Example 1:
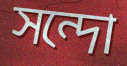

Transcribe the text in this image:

সন্দো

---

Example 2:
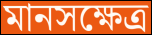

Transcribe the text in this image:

মানসক্ষেত্র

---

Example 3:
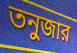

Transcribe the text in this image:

তনুজার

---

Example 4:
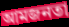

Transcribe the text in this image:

আমজনতা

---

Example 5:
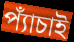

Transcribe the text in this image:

প্যাঁচাই